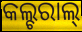
କଲ୍ଚରାଲ୍